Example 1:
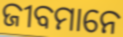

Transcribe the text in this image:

ଜୀବମାନେ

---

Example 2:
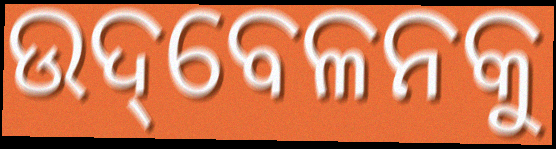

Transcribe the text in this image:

ଉଦ୍‌ବେଳନକୁ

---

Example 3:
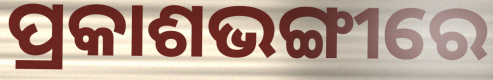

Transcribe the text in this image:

ପ୍ରକାଶଭଙ୍ଗୀରେ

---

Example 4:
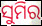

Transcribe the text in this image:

ସୁମିର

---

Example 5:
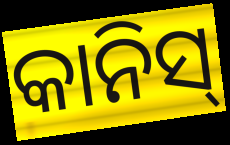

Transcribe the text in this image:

କାନିସ୍